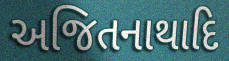
અજિતનાથાદિ